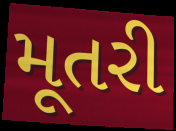
મૂતરી